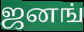
ஜனங்